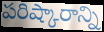
పరిష్కారాన్ని